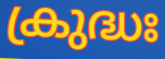
ക്രുദ്ധഃ